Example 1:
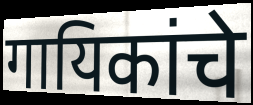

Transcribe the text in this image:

गायिकांचे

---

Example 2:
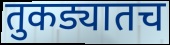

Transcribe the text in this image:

तुकड्यातच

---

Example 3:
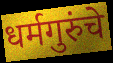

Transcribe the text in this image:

धर्मगुरुंचे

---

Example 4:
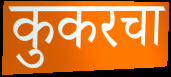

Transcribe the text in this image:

कुकरचा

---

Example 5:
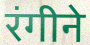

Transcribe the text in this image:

रंगीने